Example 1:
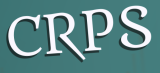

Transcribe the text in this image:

CRPS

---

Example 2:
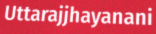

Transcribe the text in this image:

Uttarajjhayanani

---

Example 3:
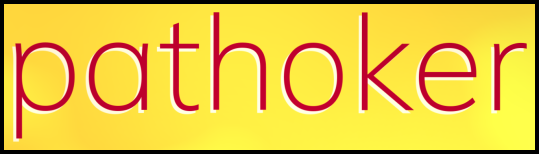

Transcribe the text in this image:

pathoker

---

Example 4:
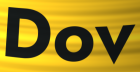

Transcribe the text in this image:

Dov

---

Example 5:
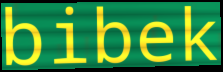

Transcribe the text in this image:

bibek